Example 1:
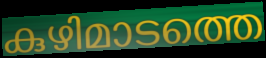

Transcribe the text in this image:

കുഴിമാടത്തെ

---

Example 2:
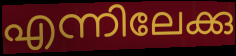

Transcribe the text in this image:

എന്നിലേക്കു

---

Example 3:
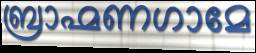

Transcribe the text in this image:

ബ്രാഹ്മണഗാമേ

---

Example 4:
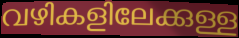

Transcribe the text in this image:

വഴികളിലേക്കുള്ള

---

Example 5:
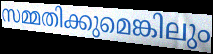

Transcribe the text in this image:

സമ്മതിക്കുമെങ്കിലും